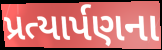
પ્રત્યાર્પણના